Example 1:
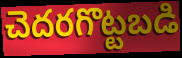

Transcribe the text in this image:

చెదరగొట్టబడి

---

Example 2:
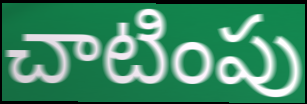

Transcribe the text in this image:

చాటింపు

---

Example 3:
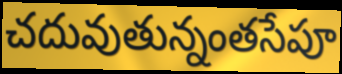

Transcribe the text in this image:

చదువుతున్నంతసేపూ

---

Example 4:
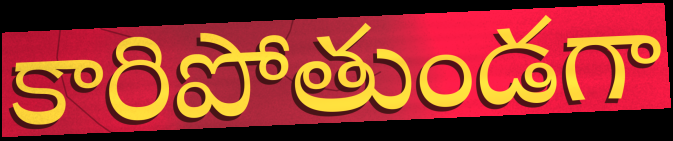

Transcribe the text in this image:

కారిపోతుండగా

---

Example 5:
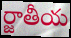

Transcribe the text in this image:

ర్జాతీయ